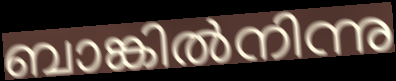
ബാങ്കിൽനിന്നു